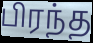
பிரந்த